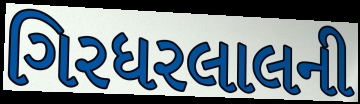
ગિરધરલાલની